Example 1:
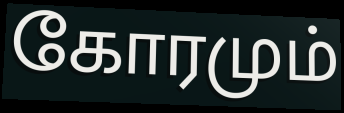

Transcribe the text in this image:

கோரமும்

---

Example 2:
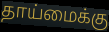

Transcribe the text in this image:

தாய்மைக்கு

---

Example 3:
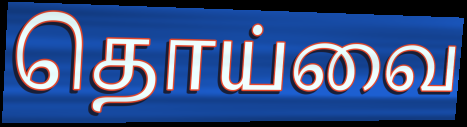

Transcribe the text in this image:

தொய்வை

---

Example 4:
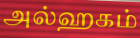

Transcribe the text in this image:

அல்ஹகம்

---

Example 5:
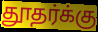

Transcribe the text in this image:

தூதர்க்கு